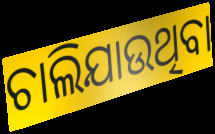
ଚାଲିଯାଉଥିବା